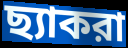
ছ্যাকরা